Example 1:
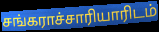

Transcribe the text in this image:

சங்கராச்சாரியாரிடம்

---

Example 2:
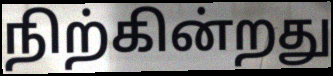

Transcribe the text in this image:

நிற்கின்றது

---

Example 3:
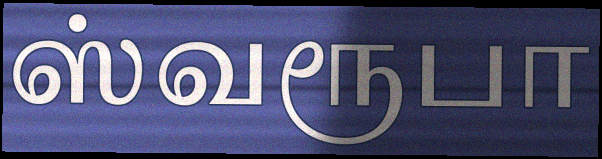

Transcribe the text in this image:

ஸ்வரூபா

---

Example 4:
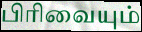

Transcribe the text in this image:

பிரிவையும்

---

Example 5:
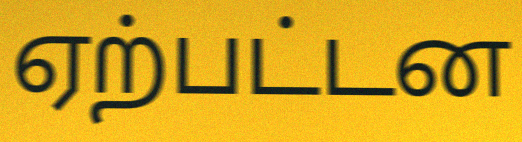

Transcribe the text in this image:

ஏற்பட்டன